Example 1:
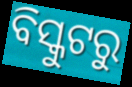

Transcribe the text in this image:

ବିସ୍କୁଟରୁ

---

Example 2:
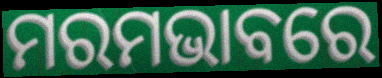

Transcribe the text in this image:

ମରମଭାବରେ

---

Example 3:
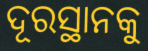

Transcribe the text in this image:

ଦୂରସ୍ଥାନକୁ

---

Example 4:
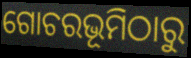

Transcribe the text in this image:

ଗୋଚରଭୂମିଠାରୁ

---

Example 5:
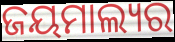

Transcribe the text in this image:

ଜୟମାଲ୍ୟର